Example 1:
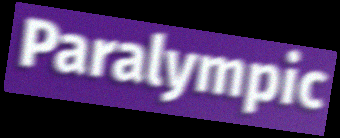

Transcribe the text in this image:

Paralympic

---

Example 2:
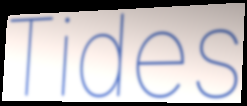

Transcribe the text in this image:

Tides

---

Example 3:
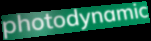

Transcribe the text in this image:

photodynamic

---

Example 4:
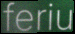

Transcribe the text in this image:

feriu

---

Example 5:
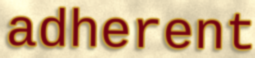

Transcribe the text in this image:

adherent